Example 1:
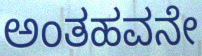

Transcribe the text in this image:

ಅಂತಹವನೇ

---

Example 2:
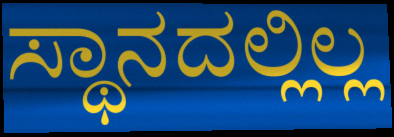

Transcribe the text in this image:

ಸ್ಥಾನದಲ್ಲಿಲ್ಲ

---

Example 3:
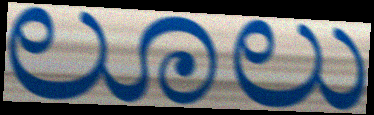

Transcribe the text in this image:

ಲೂಲು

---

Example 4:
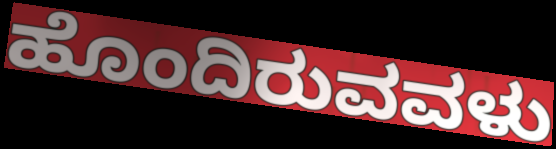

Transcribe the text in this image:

ಹೊಂದಿರುವವಳು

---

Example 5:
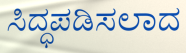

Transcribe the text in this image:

ಸಿದ್ಧಪಡಿಸಲಾದ